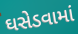
ઘસેડવામાં